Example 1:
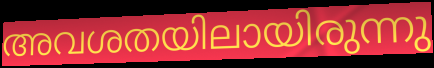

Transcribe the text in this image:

അവശതയിലായിരുന്നു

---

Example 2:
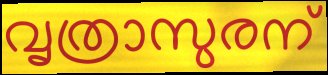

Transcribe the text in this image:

വൃത്രാസുരന്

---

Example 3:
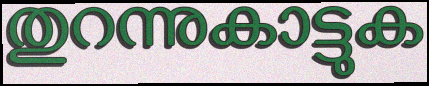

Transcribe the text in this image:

തുറന്നുകാട്ടുക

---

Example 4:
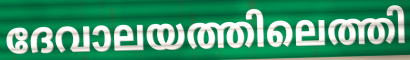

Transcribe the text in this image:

ദേവാലയത്തിലെത്തി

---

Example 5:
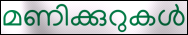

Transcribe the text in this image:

മണിക്കുറുകൾ